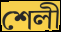
শেলী